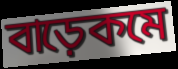
বাড়েকমে